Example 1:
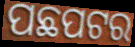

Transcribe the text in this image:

ପଛପଟର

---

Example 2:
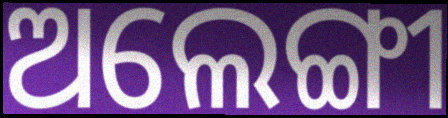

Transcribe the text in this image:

ଅଲେଙ୍ଗୀ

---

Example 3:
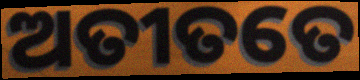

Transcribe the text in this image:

ଅତୀତତେ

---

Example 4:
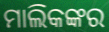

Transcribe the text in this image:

ମାଲିକଙ୍କର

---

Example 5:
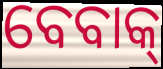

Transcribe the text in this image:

ବେବାକ୍